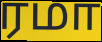
ரமா